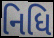
નિધિ